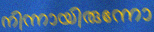
നിന്നായിരുന്നോ